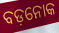
ବଡ଼ନୋକ